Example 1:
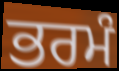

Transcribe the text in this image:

ਭਰਮੰ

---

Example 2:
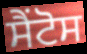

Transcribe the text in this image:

ਸੈਂਟੋਸ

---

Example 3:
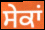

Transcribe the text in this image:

ਸੇਕਾਂ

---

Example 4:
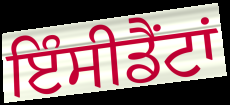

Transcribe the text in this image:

ਇੰਸੀਡੈਂਟਾਂ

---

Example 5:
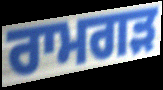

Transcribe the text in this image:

ਰਾਮਗੜ